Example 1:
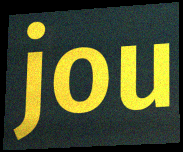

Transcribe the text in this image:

jou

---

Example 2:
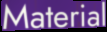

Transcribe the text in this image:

Material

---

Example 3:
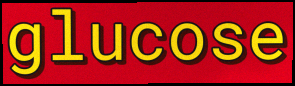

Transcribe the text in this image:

glucose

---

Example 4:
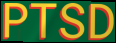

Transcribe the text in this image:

PTSD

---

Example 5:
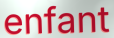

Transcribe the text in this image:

enfant